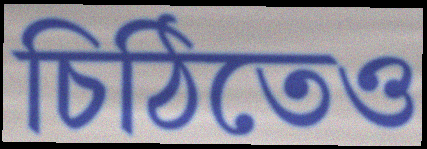
চিঠিতেও